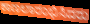
ಕಾಣಲಾರಂಭಿಸಿದರು